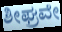
ಶೀಘ್ರವೇ